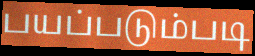
பயப்படும்படி